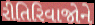
રીતિરિવાજોને